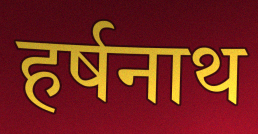
हर्षनाथ